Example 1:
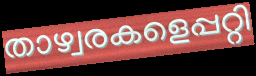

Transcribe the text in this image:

താഴ്വരകളെപ്പറ്റി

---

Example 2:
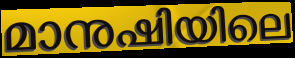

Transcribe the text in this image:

മാനുഷിയിലെ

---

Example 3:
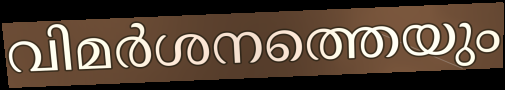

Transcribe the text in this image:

വിമർശനത്തെയും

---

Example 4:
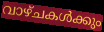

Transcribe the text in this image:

വാഴ്ചകൾക്കും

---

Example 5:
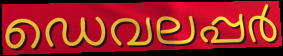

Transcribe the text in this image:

ഡെവലപ്പർ